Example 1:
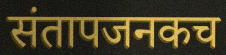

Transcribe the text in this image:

संतापजनकच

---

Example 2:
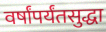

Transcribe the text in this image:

वर्षांपर्यंतसुद्धा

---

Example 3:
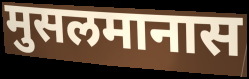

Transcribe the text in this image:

मुसलमानास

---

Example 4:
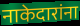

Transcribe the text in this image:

नाकेदारांना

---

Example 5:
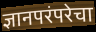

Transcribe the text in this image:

ज्ञानपरंपरेचा